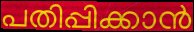
പതിപ്പിക്കാൻ